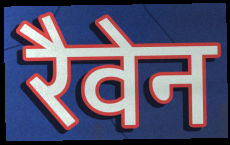
रैवेन